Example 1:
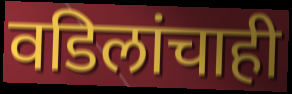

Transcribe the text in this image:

वडिलांचाही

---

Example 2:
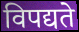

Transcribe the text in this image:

विपद्यते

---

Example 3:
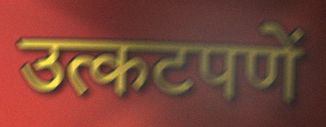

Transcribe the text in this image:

उत्कटपणें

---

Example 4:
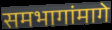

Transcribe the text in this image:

समभागांमागे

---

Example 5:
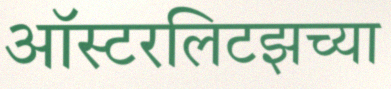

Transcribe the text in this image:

ऑस्टरलिटझच्या